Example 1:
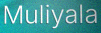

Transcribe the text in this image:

Muliyala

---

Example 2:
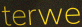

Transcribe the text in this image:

terwe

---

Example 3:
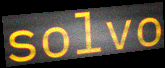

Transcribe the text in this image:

solvo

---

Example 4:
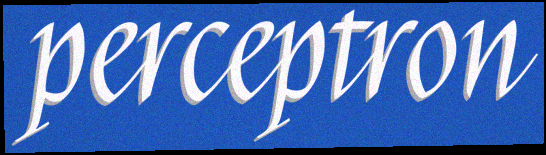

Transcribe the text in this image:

perceptron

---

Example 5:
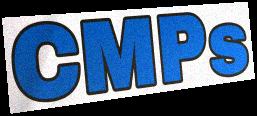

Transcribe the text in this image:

CMPs